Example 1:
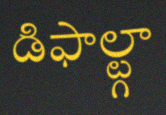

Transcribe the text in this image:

డిఫాల్ట్గా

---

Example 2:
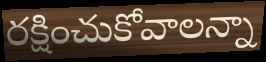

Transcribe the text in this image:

రక్షించుకోవాలన్నా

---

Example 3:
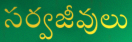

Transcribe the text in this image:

సర్వజీవులు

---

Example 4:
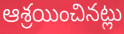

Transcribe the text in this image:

ఆశ్రయించినట్లు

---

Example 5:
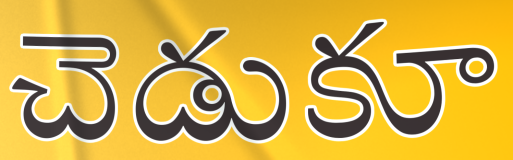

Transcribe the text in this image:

చెడుకూ